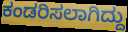
ಕಂಡರಿಸಲಾಗಿದ್ದು